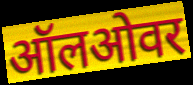
ऑलओवर